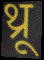
थ्रू